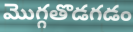
మొగ్గతొడగడం